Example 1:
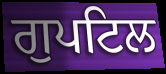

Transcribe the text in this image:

ਗੁਪਟਿਲ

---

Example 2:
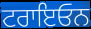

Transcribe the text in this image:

ਟਰਾਇਓਨ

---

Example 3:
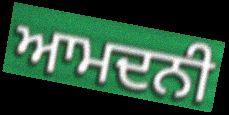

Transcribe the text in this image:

ਆਮਦਨੀ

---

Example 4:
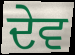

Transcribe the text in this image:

ਦੇਵ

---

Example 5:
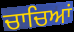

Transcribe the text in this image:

ਚਾਚਿਆਂ